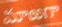
మాఱగా